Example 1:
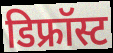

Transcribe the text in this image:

डिफ्रॉस्ट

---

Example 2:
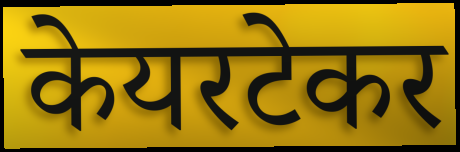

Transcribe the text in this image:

केयरटेकर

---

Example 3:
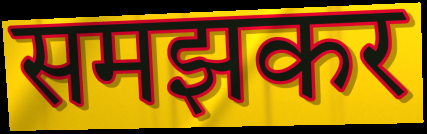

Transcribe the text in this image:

समझकर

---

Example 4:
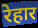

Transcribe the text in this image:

रेहार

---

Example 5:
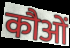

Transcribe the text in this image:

कौओं